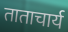
ताताचार्य